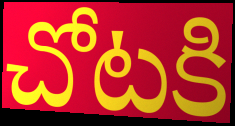
చోటకి